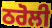
ਠਰੋਲੀ